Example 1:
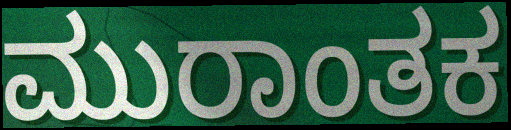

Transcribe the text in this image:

ಮುರಾಂತಕ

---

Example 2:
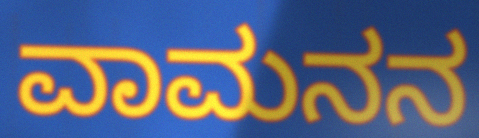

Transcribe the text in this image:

ವಾಮನನ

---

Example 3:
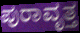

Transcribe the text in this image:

ಪುರಾವೃತ್ತ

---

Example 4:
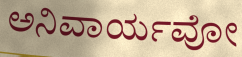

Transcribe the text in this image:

ಅನಿವಾರ್ಯವೋ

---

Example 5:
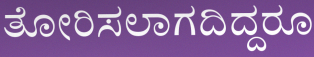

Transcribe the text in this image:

ತೋರಿಸಲಾಗದಿದ್ದರೂ